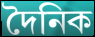
দৈনিক